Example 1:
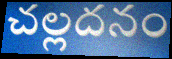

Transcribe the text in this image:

చల్లదనం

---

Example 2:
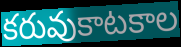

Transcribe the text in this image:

కరువుకాటకాల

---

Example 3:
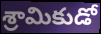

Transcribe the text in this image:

శ్రామికుడో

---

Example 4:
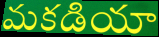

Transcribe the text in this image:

మకడియా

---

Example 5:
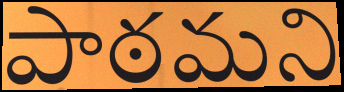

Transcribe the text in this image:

పాఠమని